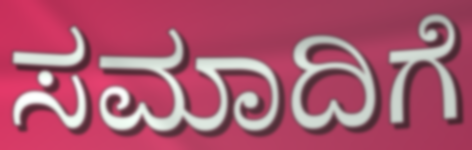
ಸಮಾದಿಗೆ